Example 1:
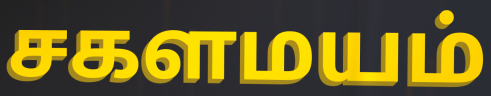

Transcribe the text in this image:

சகளமயம்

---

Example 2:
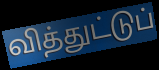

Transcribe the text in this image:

வித்துட்டுப்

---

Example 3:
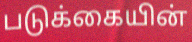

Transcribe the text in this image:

படுக்கையின்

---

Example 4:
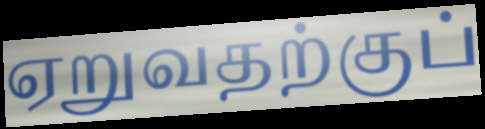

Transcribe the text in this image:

ஏறுவதற்குப்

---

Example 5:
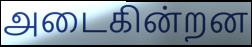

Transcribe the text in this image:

அடைகின்றன